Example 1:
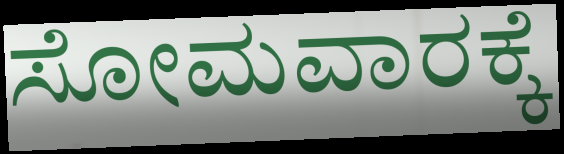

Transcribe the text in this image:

ಸೋಮವಾರಕ್ಕೆ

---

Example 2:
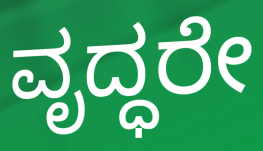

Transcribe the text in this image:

ವೃದ್ಧರೇ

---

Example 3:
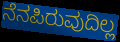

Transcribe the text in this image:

ನೆನಪಿರುವುದಿಲ್ಲ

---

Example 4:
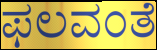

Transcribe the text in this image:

ಫಲವಂತೆ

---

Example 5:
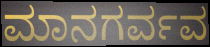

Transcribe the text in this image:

ಮಾನಗರ್ವವ